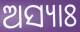
ଅସ୍ଯାଃ